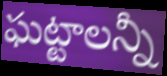
ఘట్టాలన్నీ